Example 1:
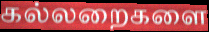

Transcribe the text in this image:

கல்லறைகளை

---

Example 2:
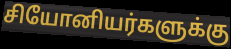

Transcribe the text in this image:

சியோனியர்களுக்கு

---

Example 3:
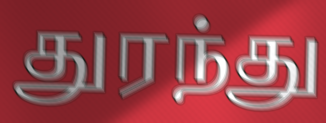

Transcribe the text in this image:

துரந்து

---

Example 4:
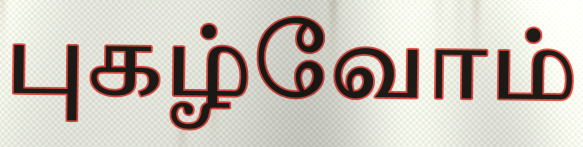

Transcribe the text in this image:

புகழ்வோம்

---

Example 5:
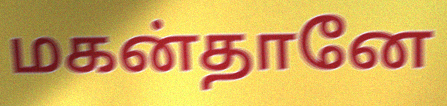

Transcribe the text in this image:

மகன்தானே